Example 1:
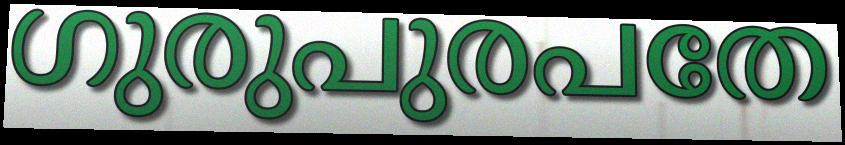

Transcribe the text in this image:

ഗുരുപുരപതേ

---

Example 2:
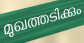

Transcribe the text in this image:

മുഖത്തടിക്കും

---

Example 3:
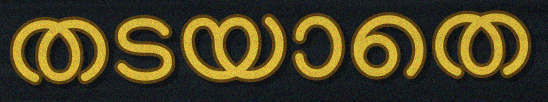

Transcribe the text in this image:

തടയാതെ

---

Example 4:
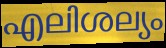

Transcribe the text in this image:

എലിശല്യം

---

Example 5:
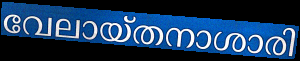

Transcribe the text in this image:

വേലായ്തനാശാരി